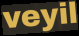
veyil